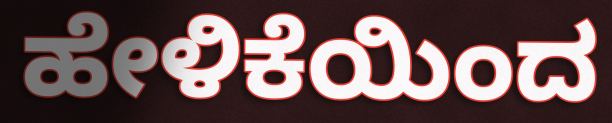
ಹೇಳಿಕೆಯಿಂದ